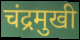
चंद्रमुखी